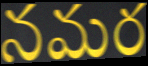
నమర